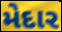
મેદાર